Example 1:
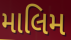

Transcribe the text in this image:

માલિમ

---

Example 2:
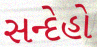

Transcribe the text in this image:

સન્દેહો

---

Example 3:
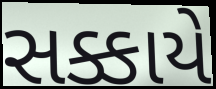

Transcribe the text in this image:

સક્કાયે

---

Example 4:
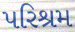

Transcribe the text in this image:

પરિશ્રમ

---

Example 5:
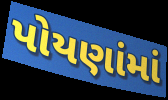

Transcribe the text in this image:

પોયણાંમાં